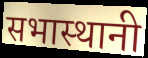
सभास्थानी